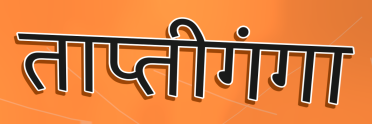
ताप्तीगंगा